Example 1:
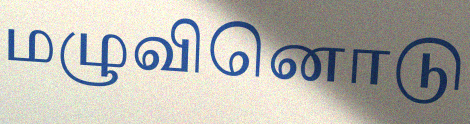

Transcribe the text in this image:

மழுவினொடு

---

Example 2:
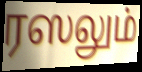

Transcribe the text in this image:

ரஸலும்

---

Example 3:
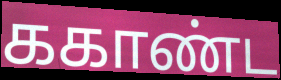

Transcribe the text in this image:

ககாண்ட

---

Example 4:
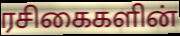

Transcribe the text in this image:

ரசிகைகளின்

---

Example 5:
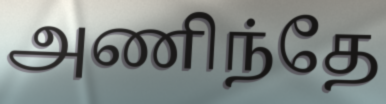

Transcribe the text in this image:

அணிந்தே